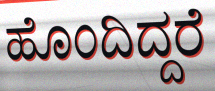
ಹೊಂದಿದ್ದರೆ